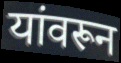
यांवरून